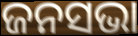
ଜନସଭା